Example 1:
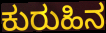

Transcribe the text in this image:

ಕುರುಹಿನ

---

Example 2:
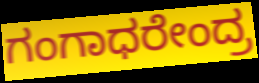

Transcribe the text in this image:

ಗಂಗಾಧರೇಂದ್ರ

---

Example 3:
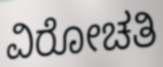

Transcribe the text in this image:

ವಿರೋಚತಿ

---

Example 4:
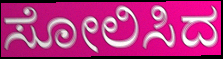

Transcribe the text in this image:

ಸೋಲಿಸಿದ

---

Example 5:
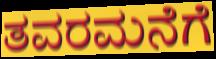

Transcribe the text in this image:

ತವರಮನೆಗೆ